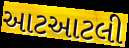
આટઆટલી